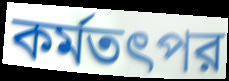
কর্মতৎপর